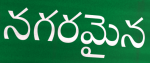
నగరమైన